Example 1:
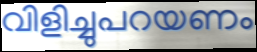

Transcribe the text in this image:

വിളിച്ചുപറയണം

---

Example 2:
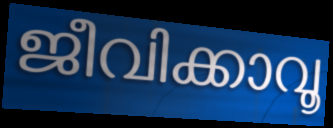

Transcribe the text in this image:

ജീവിക്കാവൂ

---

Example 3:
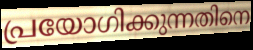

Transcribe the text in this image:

പ്രയോഗിക്കുന്നതിനെ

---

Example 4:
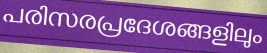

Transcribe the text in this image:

പരിസരപ്രദേശങ്ങളിലും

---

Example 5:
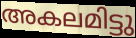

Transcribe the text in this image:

അകലമിട്ടു